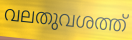
വലതുവശത്ത്